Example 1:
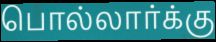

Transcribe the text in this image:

பொல்லார்க்கு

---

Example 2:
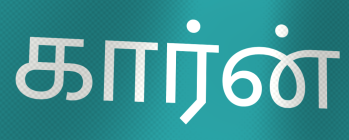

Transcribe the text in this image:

கார்ன்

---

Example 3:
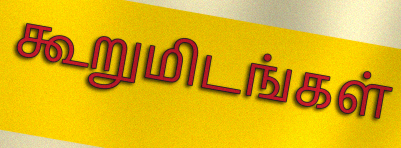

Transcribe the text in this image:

கூறுமிடங்கள்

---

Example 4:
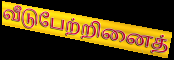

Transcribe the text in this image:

வீடுபேற்றினைத்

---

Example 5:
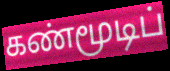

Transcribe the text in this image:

கண்மூடிப்